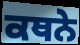
ਕਥਨੇ